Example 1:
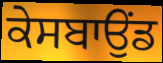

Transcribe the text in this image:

ਕੇਸਬਾਉਂਡ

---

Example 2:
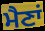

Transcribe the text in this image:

ਮੈਣਾਂ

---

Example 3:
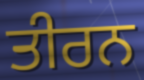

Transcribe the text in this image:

ਤੀਰਨ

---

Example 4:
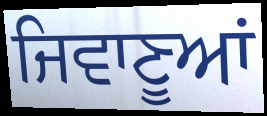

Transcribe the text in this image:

ਜਿਵਾਣੂਆਂ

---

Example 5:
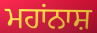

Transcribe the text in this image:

ਮਹਾਂਨਾਸ਼